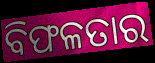
ବିଫଳତାର